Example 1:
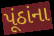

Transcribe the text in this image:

પૂંઠાંના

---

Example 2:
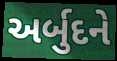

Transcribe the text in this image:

અર્બુદને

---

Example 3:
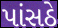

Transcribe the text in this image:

પાંસઠે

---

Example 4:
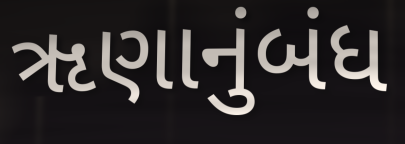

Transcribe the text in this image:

ૠણાનુંબંધ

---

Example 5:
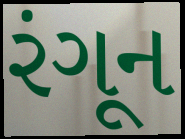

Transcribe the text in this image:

રંગૂન